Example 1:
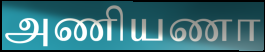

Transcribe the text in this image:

அணியணா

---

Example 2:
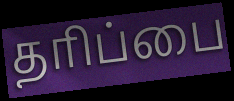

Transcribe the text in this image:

தரிப்பை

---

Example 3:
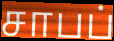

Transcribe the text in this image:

சாபப்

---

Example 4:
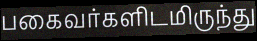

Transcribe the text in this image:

பகைவர்களிடமிருந்து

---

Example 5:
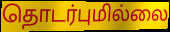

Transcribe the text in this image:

தொடர்புமில்லை